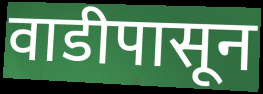
वाडीपासून